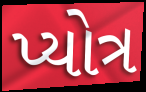
પ્યોત્ર